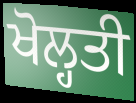
ਖੋਲ੍ਹਤੀ